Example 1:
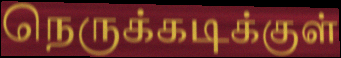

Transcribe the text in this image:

நெருக்கடிக்குள்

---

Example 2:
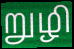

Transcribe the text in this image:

றுழி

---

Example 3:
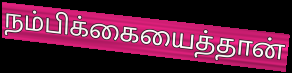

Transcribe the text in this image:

நம்பிக்கையைத்தான்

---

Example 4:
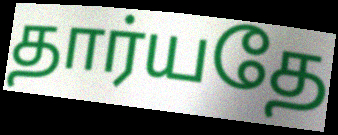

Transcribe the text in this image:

தார்யதே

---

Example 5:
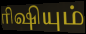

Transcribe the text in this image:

ரிஷியும்